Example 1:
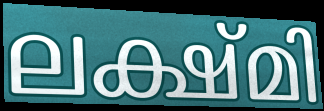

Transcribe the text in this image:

ലക്ഷ്‌മി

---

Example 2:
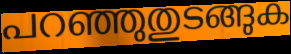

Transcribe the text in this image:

പറഞ്ഞുതുടങ്ങുക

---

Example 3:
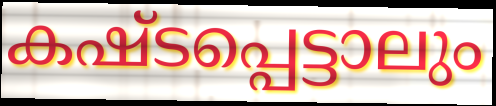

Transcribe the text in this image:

കഷ്ടപ്പെട്ടാലും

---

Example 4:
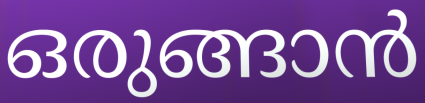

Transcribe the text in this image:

ഒരുങ്ങാൻ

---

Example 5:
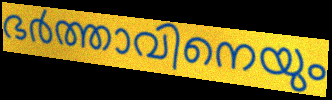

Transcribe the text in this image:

ഭർത്താവിനെയും